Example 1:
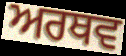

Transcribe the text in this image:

ਅਰਥਵ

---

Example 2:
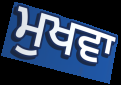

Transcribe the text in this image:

ਮੁਖਵਾ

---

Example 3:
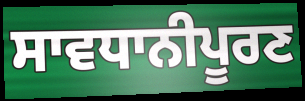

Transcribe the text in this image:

ਸਾਵਧਾਨੀਪੂਰਣ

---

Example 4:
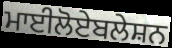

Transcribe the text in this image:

ਮਾਈਲੋਏਬਲੇਸ਼ਨ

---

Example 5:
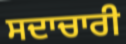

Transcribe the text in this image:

ਸਦਾਚਾਰੀ